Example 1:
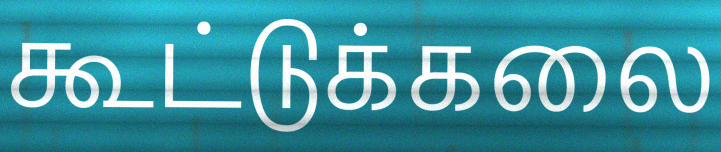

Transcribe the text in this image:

கூட்டுக்கலை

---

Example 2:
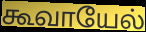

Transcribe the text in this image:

கூவாயேல்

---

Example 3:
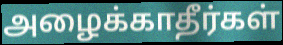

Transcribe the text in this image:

அழைக்காதீர்கள்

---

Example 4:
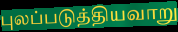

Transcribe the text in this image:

புலப்படுத்தியவாறு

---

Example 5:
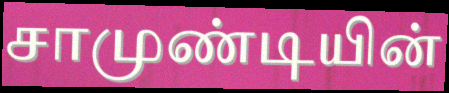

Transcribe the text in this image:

சாமுண்டியின்